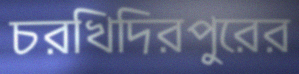
চরখিদিরপুরের